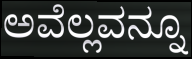
ಅವೆಲ್ಲವನ್ನೂ